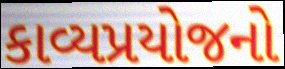
કાવ્યપ્રયોજનો